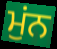
ਮੁਂਨ